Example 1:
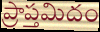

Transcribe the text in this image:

ప్రాప్తమిదం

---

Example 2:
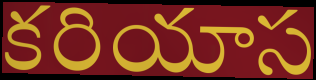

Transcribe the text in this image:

కరియాస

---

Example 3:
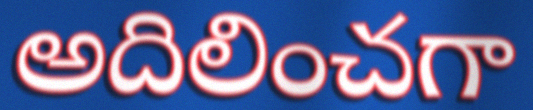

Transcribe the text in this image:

అదిలించగా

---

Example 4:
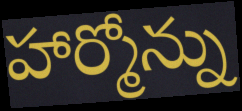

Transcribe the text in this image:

హార్మోన్ను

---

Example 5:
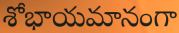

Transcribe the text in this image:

శోభాయమానంగా